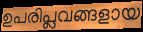
ഉപരിപ്ലവങ്ങളായ